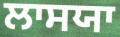
ਲਾਸਯਾ